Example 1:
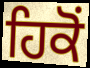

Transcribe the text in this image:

ਹਿਕੋਂ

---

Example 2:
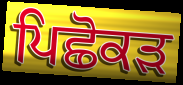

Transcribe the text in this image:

ਪਿਛੋਕੜ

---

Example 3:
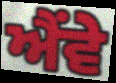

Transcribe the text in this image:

ਐਂਵੇ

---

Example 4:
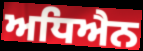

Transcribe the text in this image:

ਅਧਿਐਨ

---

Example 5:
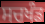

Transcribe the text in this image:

ਸਚਖੰਡ